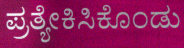
ಪ್ರತ್ಯೇಕಿಸಿಕೊಂಡು